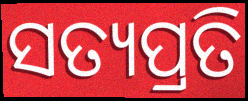
ସତ୍ୟପ୍ରତି